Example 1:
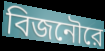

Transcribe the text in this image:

বিজনৌরে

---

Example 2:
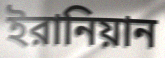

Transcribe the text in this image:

ইরানিয়ান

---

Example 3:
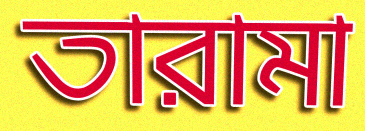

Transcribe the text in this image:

তারামা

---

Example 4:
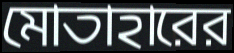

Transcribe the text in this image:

মোতাহারের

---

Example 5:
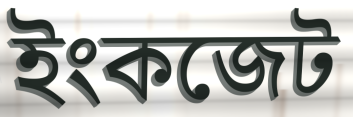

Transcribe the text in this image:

ইংকজেট